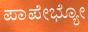
ಪಾಪೇಭ್ಯೋ